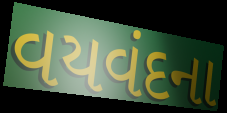
વયવંદના